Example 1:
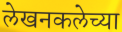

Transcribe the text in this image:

लेखनकलेच्या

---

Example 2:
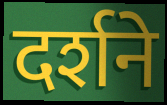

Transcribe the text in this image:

दर्शने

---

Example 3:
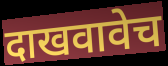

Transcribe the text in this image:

दाखवावेच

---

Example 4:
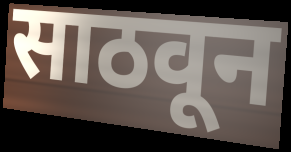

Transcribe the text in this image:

साठवून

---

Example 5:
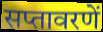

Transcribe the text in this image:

सप्तावरणें